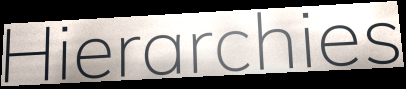
Hierarchies